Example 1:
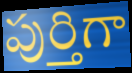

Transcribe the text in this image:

పుర్తిగా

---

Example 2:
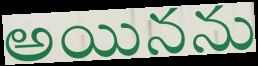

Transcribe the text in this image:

అయినను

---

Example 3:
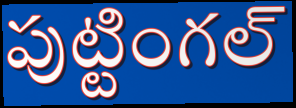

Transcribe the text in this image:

పుట్టింగల్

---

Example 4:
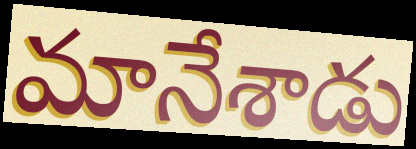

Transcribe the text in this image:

మానేశాడు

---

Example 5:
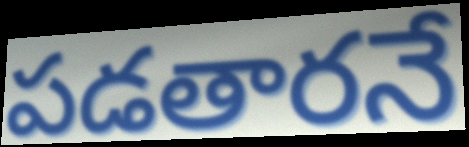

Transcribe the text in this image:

పడతారనే